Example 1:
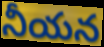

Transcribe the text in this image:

నీయన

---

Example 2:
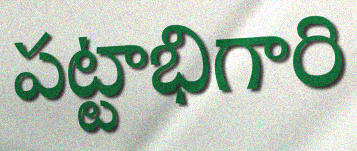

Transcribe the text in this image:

పట్టాభిగారి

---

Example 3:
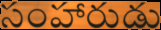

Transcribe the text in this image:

సంహారుడు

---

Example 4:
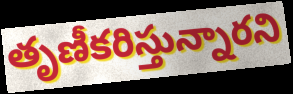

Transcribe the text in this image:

తృణీకరిస్తున్నారని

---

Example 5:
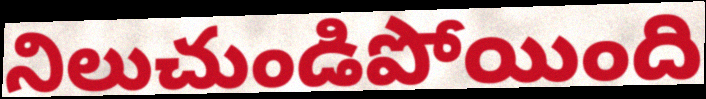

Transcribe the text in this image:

నిలుచుండిపోయింది